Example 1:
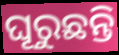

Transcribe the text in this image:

ଘୂରୁଛନ୍ତି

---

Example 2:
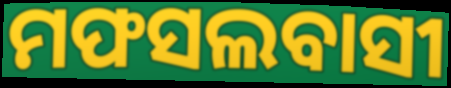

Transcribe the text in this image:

ମଫସଲବାସୀ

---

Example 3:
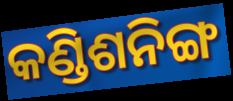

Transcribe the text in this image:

କଣ୍ଡିଶନିଙ୍ଗ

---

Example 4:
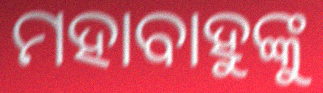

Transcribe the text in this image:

ମହାବାହୁଙ୍କୁ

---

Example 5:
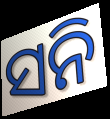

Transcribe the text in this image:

ସନି